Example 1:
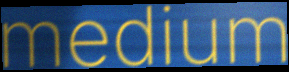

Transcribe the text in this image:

medium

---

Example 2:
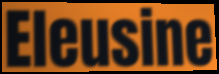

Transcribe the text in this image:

Eleusine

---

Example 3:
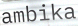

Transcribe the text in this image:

ambika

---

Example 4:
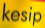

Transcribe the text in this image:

kesip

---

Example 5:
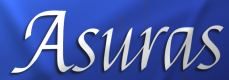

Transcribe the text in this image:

Asuras